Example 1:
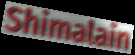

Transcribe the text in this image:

Shimalain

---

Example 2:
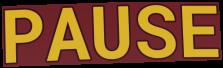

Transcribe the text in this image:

PAUSE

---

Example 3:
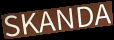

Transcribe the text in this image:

SKANDA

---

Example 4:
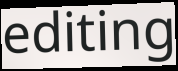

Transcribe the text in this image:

editing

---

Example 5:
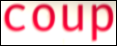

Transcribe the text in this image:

coup